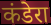
कंडेरा